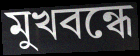
মুখবন্ধে